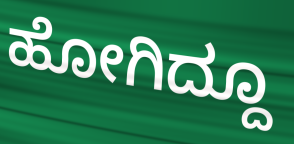
ಹೋಗಿದ್ದೂ